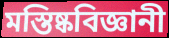
মস্তিষ্কবিজ্ঞানী